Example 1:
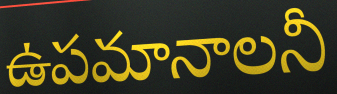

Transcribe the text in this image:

ఉపమానాలనీ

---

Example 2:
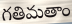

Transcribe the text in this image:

గతిమతాం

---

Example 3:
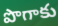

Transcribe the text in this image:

పొగాకు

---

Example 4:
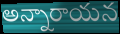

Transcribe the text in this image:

అన్నారాయన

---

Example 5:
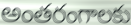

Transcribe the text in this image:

అంతరంగాలకు